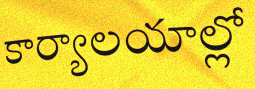
కార్యాలయాల్లో